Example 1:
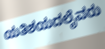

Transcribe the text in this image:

ಯತಿಶಯದಲೈವರು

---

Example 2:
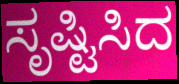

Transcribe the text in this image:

ಸೃಷ್ಟಿಸಿದ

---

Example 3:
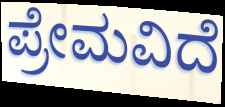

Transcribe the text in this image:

ಪ್ರೇಮವಿದೆ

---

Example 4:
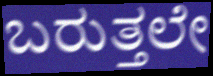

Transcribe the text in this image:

ಬರುತ್ತಲೇ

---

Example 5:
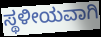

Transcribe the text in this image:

ಸ್ಥಳೀಯವಾಗಿ